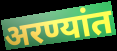
अरण्यांत